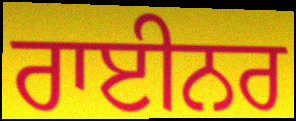
ਰਾਈਨਰ